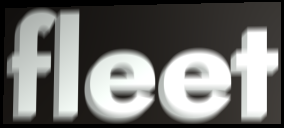
fleet